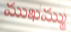
ముఖమ్ము